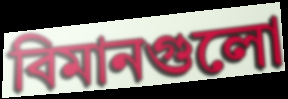
বিমানগুলো